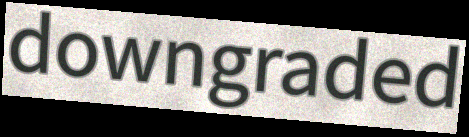
downgraded